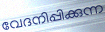
വേദനിപ്പിക്കുന്ന